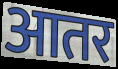
आतर